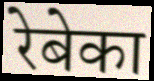
रेबेका